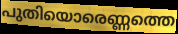
പുതിയൊരെണ്ണത്തെ